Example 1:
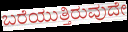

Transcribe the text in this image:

ಬರೆಯುತ್ತಿರುವುದೇ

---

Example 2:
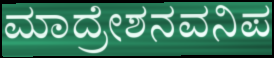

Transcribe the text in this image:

ಮಾದ್ರೇಶನವನಿಪ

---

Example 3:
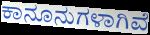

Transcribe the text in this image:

ಕಾನೂನುಗಳಾಗಿವೆ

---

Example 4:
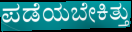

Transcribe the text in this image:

ಪಡೆಯಬೇಕಿತ್ತು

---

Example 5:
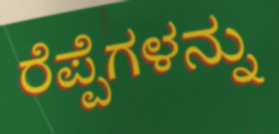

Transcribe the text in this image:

ರೆಪ್ಪೆಗಳನ್ನು